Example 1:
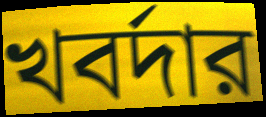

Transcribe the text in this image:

খবর্দার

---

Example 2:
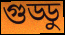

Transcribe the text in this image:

গুড্ডু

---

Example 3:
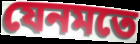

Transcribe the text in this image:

যেনমতে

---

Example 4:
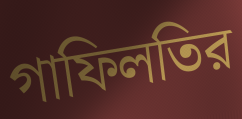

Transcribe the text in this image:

গাফিলতির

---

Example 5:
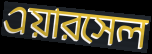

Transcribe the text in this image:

এয়ারসেল